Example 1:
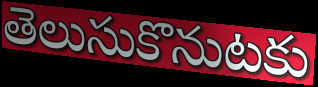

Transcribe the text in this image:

తెలుసుకొనుటకు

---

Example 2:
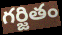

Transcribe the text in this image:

గర్జితం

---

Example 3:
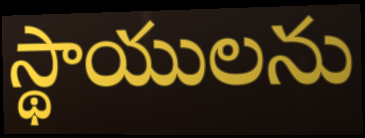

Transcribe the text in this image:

స్థాయులను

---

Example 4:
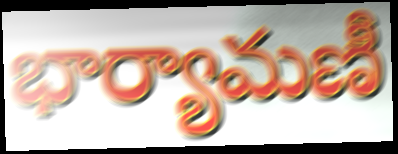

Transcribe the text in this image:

భార్యామణీ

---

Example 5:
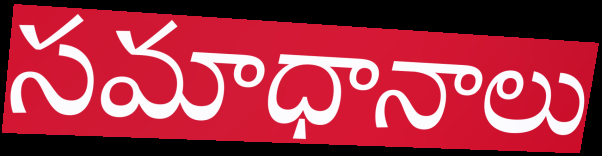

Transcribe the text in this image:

సమాధానాలు